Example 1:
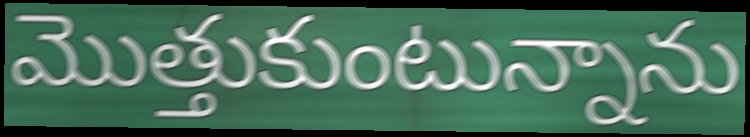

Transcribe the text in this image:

మొత్తుకుంటున్నాను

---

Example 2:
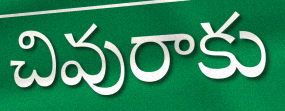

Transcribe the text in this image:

చివురాకు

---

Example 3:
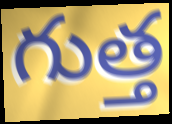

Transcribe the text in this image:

గుత్త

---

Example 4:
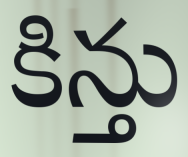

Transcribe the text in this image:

కిన్తు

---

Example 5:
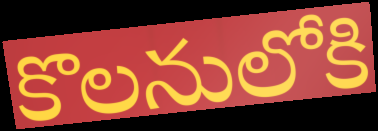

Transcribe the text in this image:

కొలనులోకి